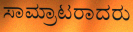
ಸಾಮ್ರಾಟರಾದರು